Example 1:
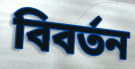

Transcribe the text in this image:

বিবর্তন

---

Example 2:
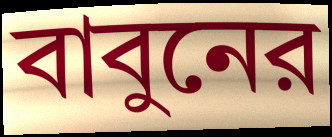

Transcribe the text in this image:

বাবুনের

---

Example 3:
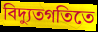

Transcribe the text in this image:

বিদ্যুতগতিতে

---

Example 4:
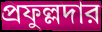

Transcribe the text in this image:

প্রফুল্লদার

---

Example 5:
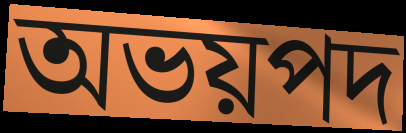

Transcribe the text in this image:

অভয়পদ